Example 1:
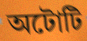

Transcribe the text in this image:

অটোটি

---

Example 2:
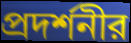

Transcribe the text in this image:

প্রদর্শনীর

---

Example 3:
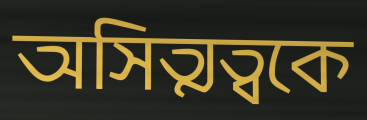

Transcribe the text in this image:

অসিত্মত্বকে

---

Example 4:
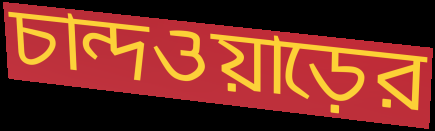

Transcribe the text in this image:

চান্দওয়াড়ের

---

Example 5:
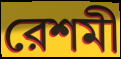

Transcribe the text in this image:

রেশমী